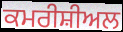
ਕਮਰੀਸ਼ੀਅਲ